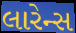
લારેન્સ